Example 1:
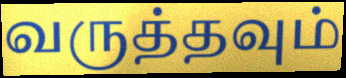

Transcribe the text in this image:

வருத்தவும்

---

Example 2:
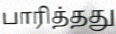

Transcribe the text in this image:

பாரித்தது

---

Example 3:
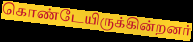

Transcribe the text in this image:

கொண்டேயிருக்கின்றனர்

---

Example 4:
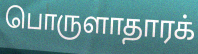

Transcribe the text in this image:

பொருளாதாரக்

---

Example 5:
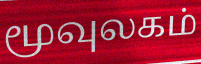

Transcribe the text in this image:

மூவுலகம்